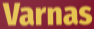
Varnas